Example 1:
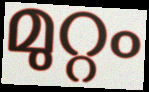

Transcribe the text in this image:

മുറ്റം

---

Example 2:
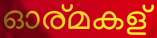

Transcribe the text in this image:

ഓര്മകള്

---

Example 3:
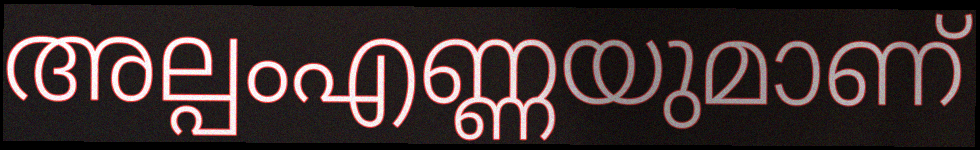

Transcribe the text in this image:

അല്പംഎണ്ണയുമാണ്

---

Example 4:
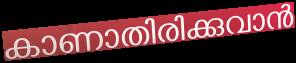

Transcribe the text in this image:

കാണാതിരിക്കുവാൻ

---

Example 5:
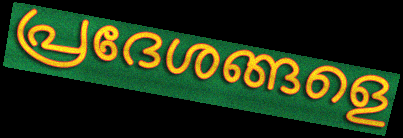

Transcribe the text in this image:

പ്രദേശങ്ങളെ